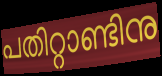
പതിറ്റാണ്ടിനു